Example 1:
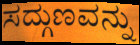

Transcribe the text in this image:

ಸದ್ಗುಣವನ್ನು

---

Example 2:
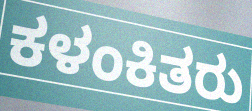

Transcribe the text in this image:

ಕಳಂಕಿತರು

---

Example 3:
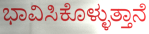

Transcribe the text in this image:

ಭಾವಿಸಿಕೊಳ್ಳುತ್ತಾನೆ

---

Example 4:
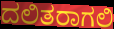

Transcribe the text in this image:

ದಲಿತರಾಗಲಿ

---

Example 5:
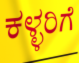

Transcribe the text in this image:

ಕಳ್ಳರಿಗೆ